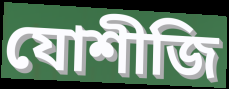
যোশীজি